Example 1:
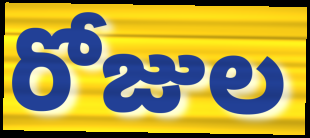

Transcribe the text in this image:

రోజుల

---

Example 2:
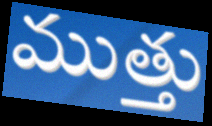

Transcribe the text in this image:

ముత్తు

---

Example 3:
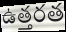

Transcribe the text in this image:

ఉత్తరత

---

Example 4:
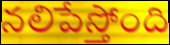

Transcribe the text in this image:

నలిపేస్తోంది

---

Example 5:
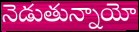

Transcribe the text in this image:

నెడుతున్నాయో